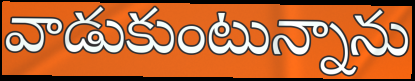
వాడుకుంటున్నాను